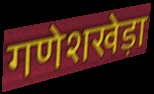
गणेशखेड़ा